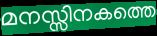
മനസ്സിനകത്തെ